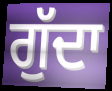
ਗੁੱਦਾ